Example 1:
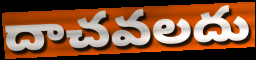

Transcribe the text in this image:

దాచవలదు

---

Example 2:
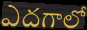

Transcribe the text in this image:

ఎదగాలో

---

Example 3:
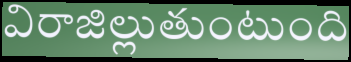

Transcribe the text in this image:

విరాజిల్లుతుంటుంది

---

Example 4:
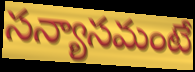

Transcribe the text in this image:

సన్యాసమంటే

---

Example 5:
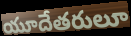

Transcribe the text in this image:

యూదేతరులూ